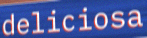
deliciosa